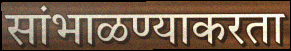
सांभाळण्याकरता